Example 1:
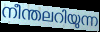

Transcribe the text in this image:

നീന്തലറിയുന്ന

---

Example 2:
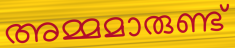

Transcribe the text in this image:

അമ്മമാരുണ്ട്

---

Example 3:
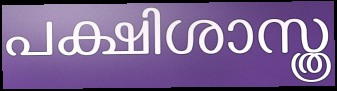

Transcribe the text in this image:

പക്ഷിശാസ്ത്ര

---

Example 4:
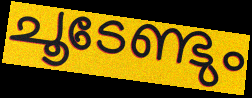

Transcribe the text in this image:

ചൂടേണ്ടും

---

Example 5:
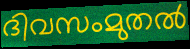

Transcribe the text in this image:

ദിവസംമുതൽ